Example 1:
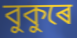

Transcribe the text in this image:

বুকুৰে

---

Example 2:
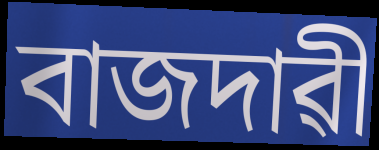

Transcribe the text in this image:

বাজদাৱী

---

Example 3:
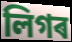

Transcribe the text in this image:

লিগৰ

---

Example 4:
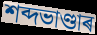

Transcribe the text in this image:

শব্দভাণ্ডাৰ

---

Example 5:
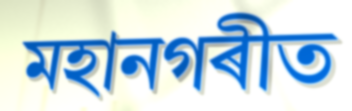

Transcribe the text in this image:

মহানগৰীত